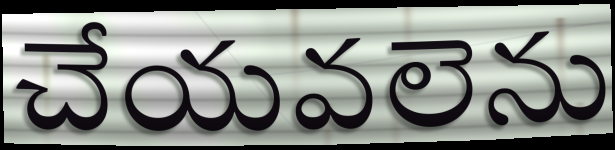
చేయవలెను